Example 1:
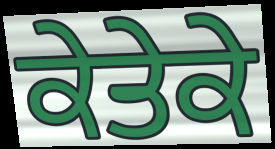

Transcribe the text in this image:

ਕੇਤੇਕੇ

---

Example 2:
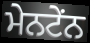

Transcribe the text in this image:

ਮੇਨਟੇਂਨ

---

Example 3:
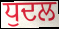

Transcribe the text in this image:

ਧੁਦਲ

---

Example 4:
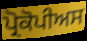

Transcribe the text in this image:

ਪ੍ਰੋਕੋਪੀਅਸ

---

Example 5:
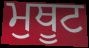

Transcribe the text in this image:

ਮੁਥੂਟ